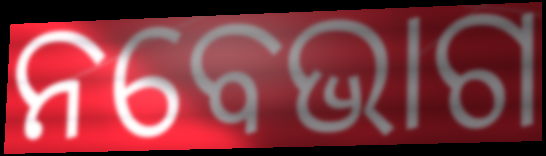
ନବେଭାଗ